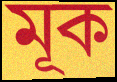
মূক